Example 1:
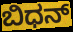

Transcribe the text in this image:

ಬಿಧನ್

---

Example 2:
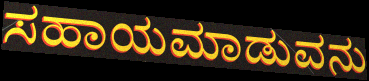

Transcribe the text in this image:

ಸಹಾಯಮಾಡುವನು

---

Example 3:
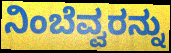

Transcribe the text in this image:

ನಿಂಬೆವ್ವರನ್ನು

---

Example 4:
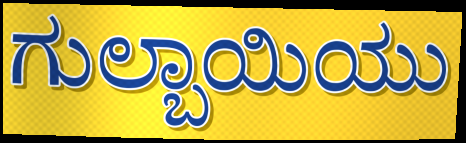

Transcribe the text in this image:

ಗುಲ್ಬಾಯಿಯು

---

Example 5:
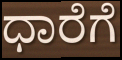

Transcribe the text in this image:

ಧಾರೆಗೆ